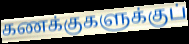
கணக்குகளுக்குப்